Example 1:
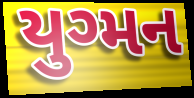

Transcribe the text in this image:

યુગ્મન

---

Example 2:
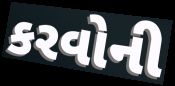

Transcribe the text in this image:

કરવોની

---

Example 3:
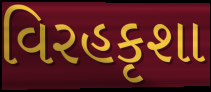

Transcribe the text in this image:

વિરહકૃશા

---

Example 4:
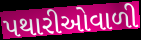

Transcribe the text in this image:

પથારીઓવાળી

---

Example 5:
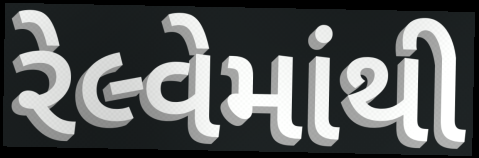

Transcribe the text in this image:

રેલ્વેમાંથી